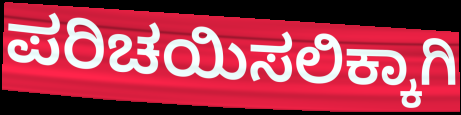
ಪರಿಚಯಿಸಲಿಕ್ಕಾಗಿ